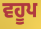
ਵਹੂਪ